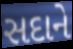
સદાને